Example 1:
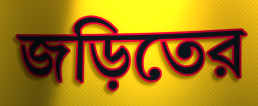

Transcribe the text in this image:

জড়িতের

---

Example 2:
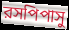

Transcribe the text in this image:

রসপিপাসু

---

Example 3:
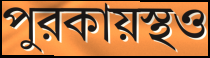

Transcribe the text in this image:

পুরকায়স্থও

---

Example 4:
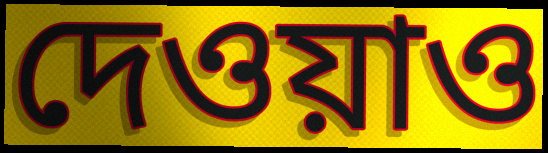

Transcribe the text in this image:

দেওয়াও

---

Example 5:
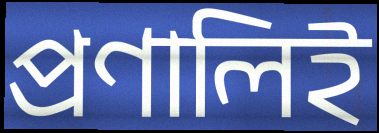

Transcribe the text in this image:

প্রণালিই